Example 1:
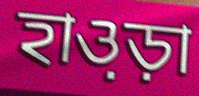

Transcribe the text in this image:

হাও়ড়া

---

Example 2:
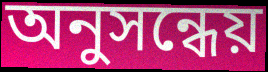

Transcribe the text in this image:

অনুসন্ধেয়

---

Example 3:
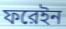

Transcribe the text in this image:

ফরেইন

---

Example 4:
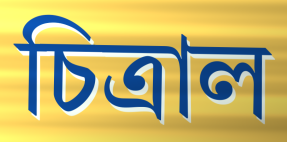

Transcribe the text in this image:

চিত্রাল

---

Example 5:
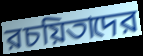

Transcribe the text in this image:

রচয়িতাদের